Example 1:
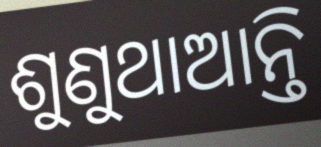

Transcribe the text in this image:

ଶୁଣୁଥାଆନ୍ତି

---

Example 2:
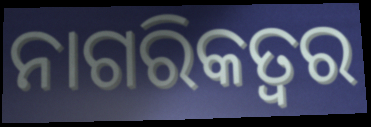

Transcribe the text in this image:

ନାଗରିକତ୍ୱର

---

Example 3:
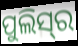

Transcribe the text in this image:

ପୁଲିସ୍‌ର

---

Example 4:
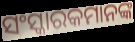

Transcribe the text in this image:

ସଂସ୍କାରକମାନଙ୍କ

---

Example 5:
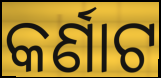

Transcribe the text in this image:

କର୍ଣାଟ